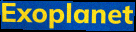
Exoplanet